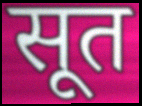
सूत